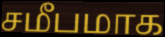
சமீபமாக